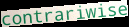
contrariwise